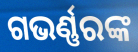
ଗଭର୍ଣ୍ଣରଙ୍କ